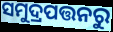
ସମୁଦ୍ରପତ୍ତନରୁ